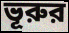
ভূরুর